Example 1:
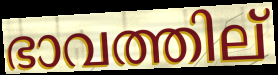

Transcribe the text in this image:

ഭാവത്തില്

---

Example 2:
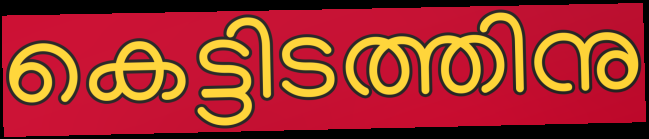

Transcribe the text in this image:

കെട്ടിടത്തിനു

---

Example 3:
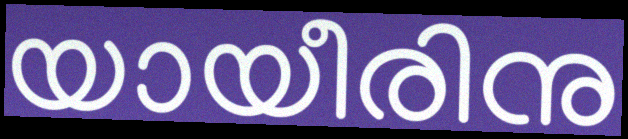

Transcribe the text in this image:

യായീരിനു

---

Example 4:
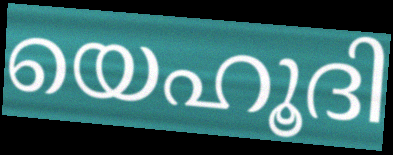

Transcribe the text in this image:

യെഹൂദി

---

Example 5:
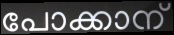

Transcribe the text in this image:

പോക്കാന്